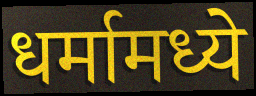
धर्मामध्ये